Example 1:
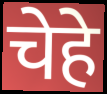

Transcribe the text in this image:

चेहे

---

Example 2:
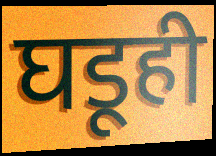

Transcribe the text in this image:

घडूही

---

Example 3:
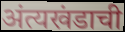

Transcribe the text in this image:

अंत्यखंडाची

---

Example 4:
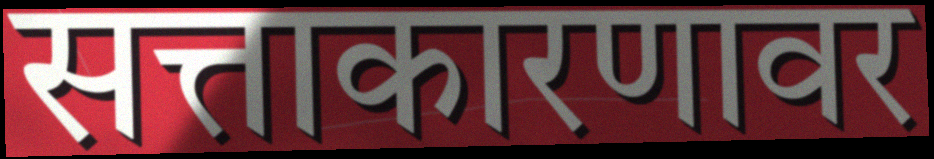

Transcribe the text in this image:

सत्ताकारणावर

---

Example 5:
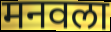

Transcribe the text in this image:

मनवला